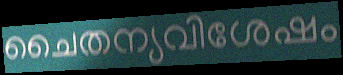
ചൈതന്യവിശേഷം